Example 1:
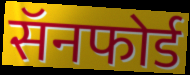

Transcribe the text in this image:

सॅनफोर्ड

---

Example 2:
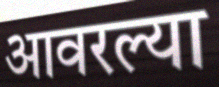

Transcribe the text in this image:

आवरल्या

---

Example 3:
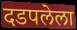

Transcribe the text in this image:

दडपलेला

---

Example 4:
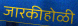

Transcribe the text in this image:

जारकीहोळी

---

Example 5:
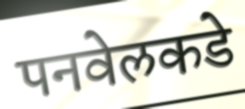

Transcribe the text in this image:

पनवेलकडे